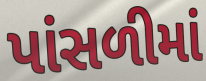
પાંસળીમાં